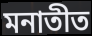
মনাতীত